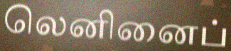
லெனினைப்